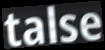
talse